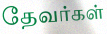
தேவர்கள்